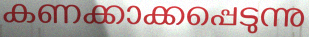
കണക്കാക്കപ്പെടുന്നു